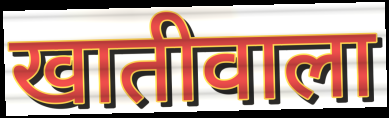
खातीवाला